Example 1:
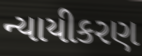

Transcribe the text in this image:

ન્યાયીકરણ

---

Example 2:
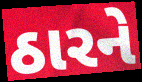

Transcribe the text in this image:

ઠારને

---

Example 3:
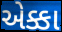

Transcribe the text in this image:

એક્કા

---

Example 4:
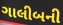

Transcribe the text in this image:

ગાલીબની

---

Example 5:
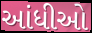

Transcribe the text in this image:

આંધીઓ